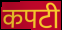
कपटी